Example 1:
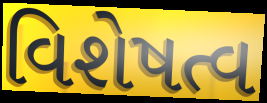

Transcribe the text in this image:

વિશેષત્વ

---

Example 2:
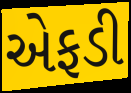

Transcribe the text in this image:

એફડી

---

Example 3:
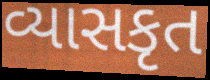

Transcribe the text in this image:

વ્યાસકૃત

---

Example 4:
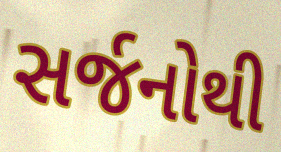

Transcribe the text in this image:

સર્જનોથી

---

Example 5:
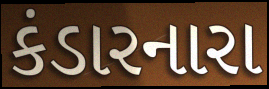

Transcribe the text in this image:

કંડારનારા